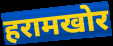
हरामखोर